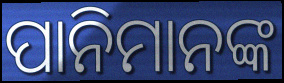
ପାନିମାନଙ୍କ